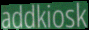
addkiosk